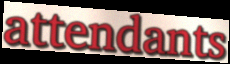
attendants